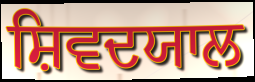
ਸ਼ਿਵਦਯਾਲ